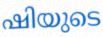
ഷിയുടെ